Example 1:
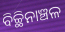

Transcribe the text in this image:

ବିଚ୍ଛିନାଞ୍ଚଳ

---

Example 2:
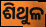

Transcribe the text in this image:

ଶିଥୁଳ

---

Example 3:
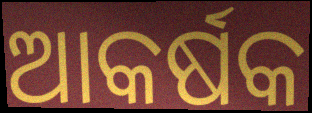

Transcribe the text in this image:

ଆକର୍ଷକ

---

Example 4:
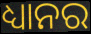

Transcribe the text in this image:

ଧ୍ୟାନର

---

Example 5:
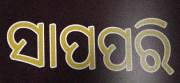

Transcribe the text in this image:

ସାପପରି